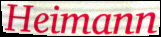
Heimann